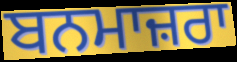
ਬਨਮਾਜ਼ਰਾ